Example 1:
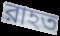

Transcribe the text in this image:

রাহত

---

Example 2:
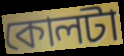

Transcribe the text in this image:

কোলটা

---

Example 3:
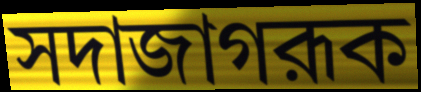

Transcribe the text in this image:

সদাজাগরূক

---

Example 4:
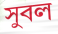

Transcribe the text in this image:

সুবল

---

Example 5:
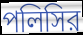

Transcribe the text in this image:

পলিসির